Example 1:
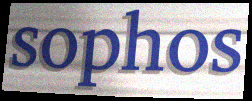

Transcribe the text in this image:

sophos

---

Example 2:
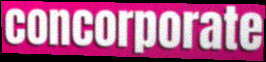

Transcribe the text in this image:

concorporate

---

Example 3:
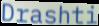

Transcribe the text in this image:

Drashti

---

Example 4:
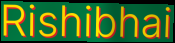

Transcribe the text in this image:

Rishibhai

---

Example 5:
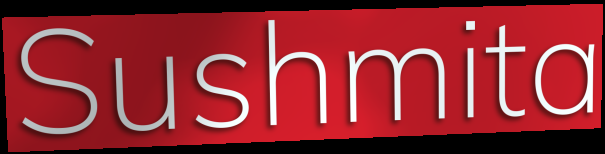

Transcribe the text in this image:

Sushmita